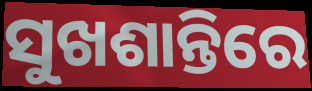
ସୁଖଶାନ୍ତିରେ